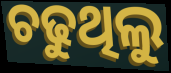
ଚଢୁଥିଲୁ